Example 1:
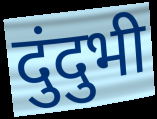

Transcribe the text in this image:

दुंदुभी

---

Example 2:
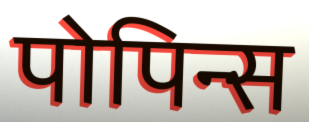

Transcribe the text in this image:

पोपिन्स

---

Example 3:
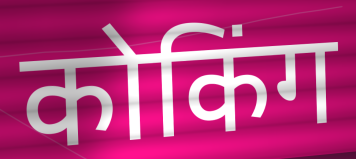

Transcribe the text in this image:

कोकिंग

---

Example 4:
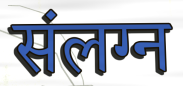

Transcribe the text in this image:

संलग्‍न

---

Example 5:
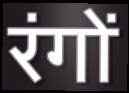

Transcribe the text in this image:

रंगों